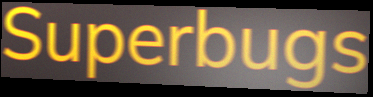
Superbugs